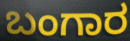
ಬಂಗಾರ